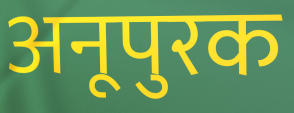
अनूपुरक